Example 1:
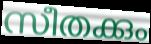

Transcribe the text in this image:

സീതക്കും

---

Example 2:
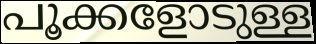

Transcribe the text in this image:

പൂക്കളോടുള്ള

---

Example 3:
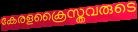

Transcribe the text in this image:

കേരളക്രൈസ്തവരുടെ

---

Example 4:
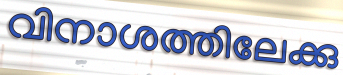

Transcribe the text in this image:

വിനാശത്തിലേക്കു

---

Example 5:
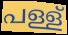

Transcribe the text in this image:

പള്ള്